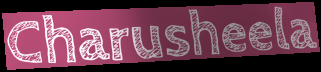
Charusheela